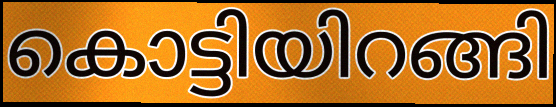
കൊട്ടിയിറങ്ങി